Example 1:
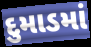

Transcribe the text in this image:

દુમાડમાં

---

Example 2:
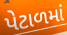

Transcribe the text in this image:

પેટાળમાં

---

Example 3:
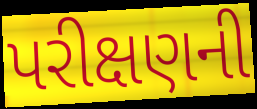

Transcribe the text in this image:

પરીક્ષણની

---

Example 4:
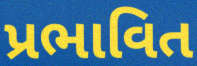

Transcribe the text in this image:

પ્રભાવિત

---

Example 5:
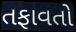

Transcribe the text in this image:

તફાવતો